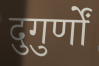
दुगुर्णों